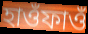
হাওঁফাওঁ